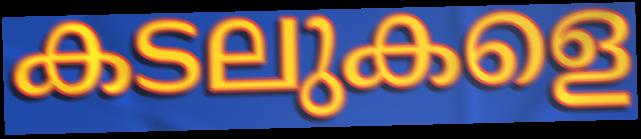
കടലുകളെ